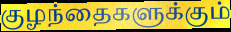
குழந்தைகளுக்கும்